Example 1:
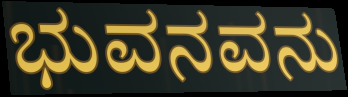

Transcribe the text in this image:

ಭುವನವನು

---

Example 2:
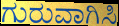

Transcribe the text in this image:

ಗುರುವಾಗಿಸಿ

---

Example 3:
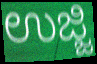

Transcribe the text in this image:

ಉಜ್ಜಿ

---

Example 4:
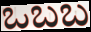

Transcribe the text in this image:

ಒಬಬ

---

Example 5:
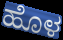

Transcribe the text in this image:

ಹೊಳ